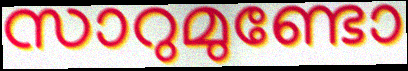
സാറുമുണ്ടോ